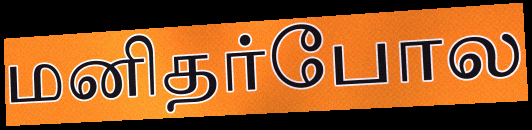
மனிதர்போல